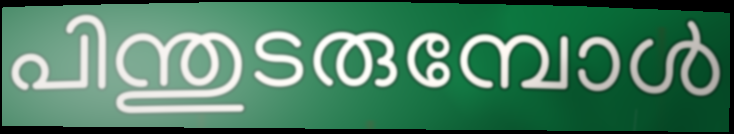
പിന്തുടരുമ്പോൾ